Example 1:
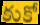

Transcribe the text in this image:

కుకో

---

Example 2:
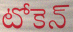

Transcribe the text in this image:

టోకెన్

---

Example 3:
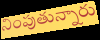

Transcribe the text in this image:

నింపుతున్నారు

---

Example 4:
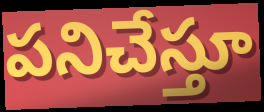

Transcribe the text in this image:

పనిచేస్తూ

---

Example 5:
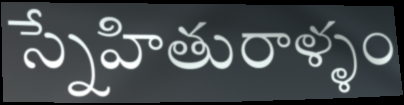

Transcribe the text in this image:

స్నేహితురాళ్ళం